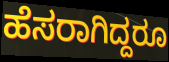
ಹೆಸರಾಗಿದ್ದರೂ